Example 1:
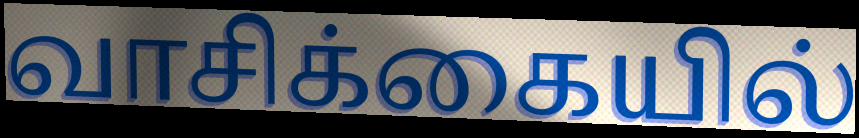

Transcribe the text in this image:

வாசிக்கையில்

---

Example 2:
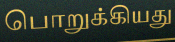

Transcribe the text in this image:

பொறுக்கியது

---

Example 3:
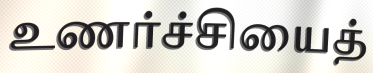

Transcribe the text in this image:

உணர்ச்சியைத்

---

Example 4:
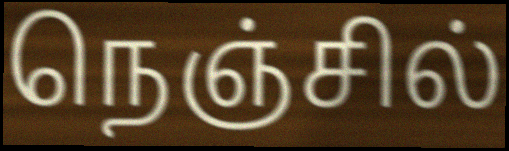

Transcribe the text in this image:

நெஞ்சில்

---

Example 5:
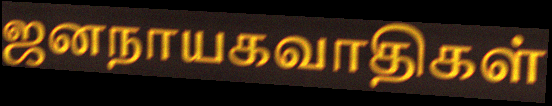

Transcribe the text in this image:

ஜனநாயகவாதிகள்